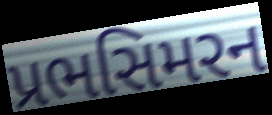
પ્રભસિમરન